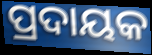
ପ୍ରଦାୟକ